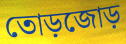
তোড়জোড়